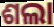
ଶଲା